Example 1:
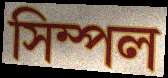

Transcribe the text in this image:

সিম্পল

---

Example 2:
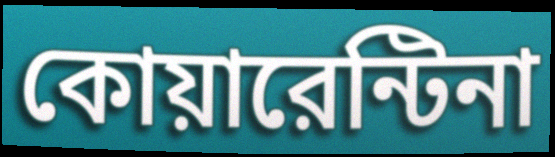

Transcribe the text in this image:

কোয়ারেন্টিনা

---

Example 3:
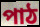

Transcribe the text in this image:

পাঠ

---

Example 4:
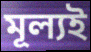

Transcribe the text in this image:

মূল্যই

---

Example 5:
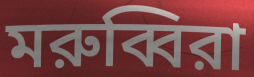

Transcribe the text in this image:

মরুব্বিরা